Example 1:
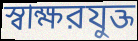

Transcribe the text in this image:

স্বাক্ষরযুক্ত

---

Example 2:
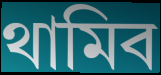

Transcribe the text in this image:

থামিব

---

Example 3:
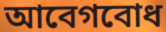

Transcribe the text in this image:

আবেগবোধ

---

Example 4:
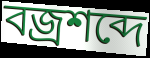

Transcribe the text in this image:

বজ্রশব্দে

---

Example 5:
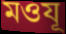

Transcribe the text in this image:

মওযূ